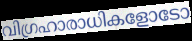
വിഗ്രഹാരാധികളോടോ